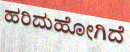
ಹರಿದುಹೋಗಿದೆ